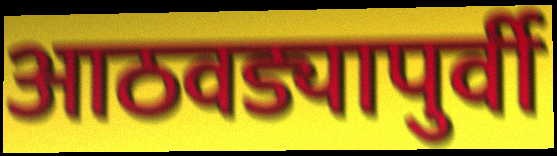
आठवड्यापुर्वी